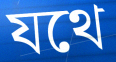
যথে